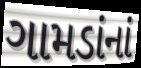
ગામડાંનાં